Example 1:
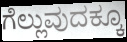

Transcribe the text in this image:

ಗೆಲ್ಲುವುದಕ್ಕೂ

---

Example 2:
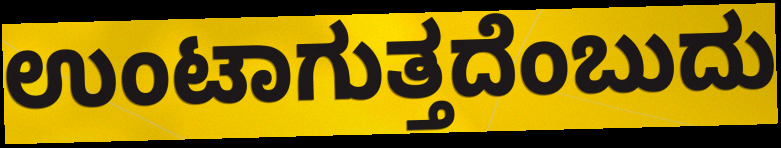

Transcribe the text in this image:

ಉಂಟಾಗುತ್ತದೆಂಬುದು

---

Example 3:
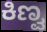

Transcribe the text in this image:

ಕಿಣ್ವ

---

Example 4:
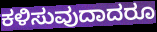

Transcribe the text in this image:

ಕಳಿಸುವುದಾದರೂ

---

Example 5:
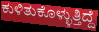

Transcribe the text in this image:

ಕುಳಿತುಕೊಳ್ಳುತ್ತಿದ್ದೆ